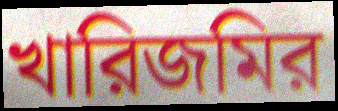
খারিজমির